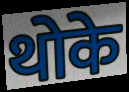
थोके